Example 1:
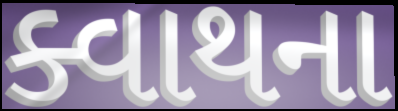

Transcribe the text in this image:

ક્વાથના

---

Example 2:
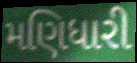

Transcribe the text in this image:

મણિધારી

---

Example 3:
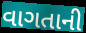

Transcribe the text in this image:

વાગતાની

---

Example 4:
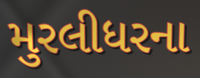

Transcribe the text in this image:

મુરલીધરના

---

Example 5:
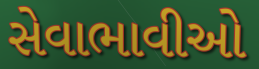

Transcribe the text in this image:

સેવાભાવીઓ